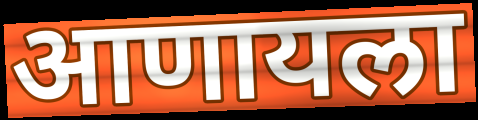
आणायला